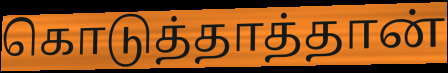
கொடுத்தாத்தான்